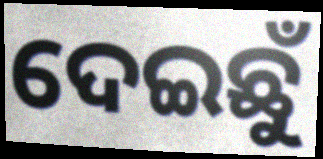
ଦେଇଛୁଁ